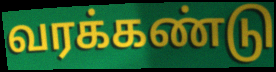
வரக்கண்டு